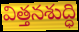
విత్తనశుద్ధి